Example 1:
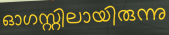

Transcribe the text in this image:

ഓഗസ്റ്റിലായിരുന്നു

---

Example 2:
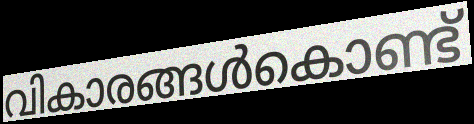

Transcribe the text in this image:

വികാരങ്ങൾകൊണ്ട്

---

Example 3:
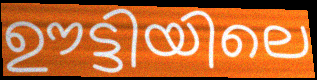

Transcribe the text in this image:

ഊട്ടിയിലെ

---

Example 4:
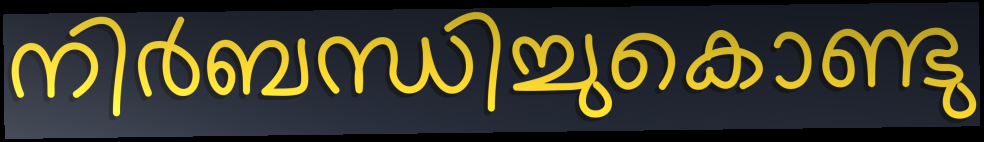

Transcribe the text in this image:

നിർബന്ധിച്ചുകൊണ്ടു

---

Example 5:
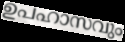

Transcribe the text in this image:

ഉപഹാസവും